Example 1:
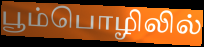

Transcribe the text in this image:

பூம்பொழிலில்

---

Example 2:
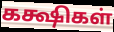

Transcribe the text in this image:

கக்ஷிகள்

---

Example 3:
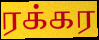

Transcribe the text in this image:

ரக்கர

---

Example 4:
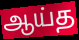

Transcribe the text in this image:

ஆய்த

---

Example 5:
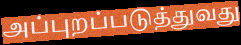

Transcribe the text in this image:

அப்புறப்படுத்துவது